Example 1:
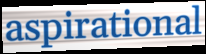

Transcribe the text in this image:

aspirational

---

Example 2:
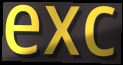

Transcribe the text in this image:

exc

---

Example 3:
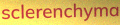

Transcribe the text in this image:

sclerenchyma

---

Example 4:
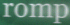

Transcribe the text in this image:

romp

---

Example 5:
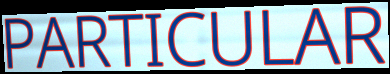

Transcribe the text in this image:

PARTICULAR